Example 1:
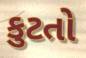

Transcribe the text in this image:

કુટતો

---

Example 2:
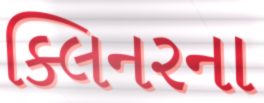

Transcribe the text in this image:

ક્લિનરના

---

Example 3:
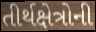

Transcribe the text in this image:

તીર્થક્ષેત્રોની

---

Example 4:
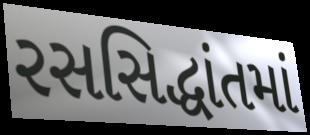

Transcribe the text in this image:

રસસિદ્ધાંતમાં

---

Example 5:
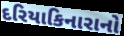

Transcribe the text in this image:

દરિયાકિનારાનો